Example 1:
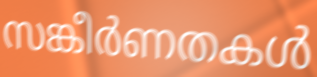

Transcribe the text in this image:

സങ്കീർണതകൾ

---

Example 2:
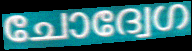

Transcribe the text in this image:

ചോദ്വേഗ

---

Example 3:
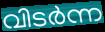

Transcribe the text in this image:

വിടർന്ന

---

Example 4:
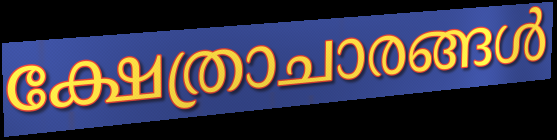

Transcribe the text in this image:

ക്ഷേത്രാചാരങ്ങൾ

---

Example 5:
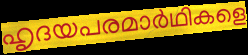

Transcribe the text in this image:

ഹൃദയപരമാർഥികളെ